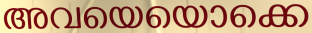
അവയെയൊക്കെ